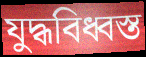
যুদ্ধবিধ্বস্ত